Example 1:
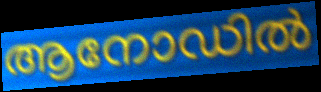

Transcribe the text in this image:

ആനോഡിൽ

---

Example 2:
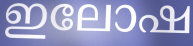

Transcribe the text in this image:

ഇലോഷ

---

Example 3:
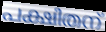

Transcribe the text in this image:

പക്ഷിതന്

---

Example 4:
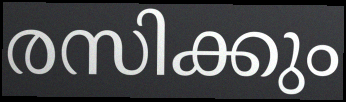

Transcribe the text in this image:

രസിക്കും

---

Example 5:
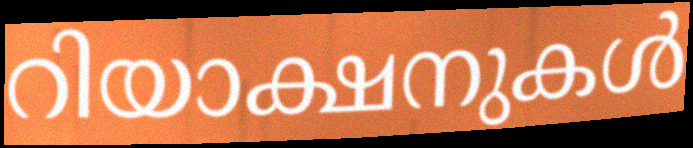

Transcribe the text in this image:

റിയാക്ഷനുകൾ